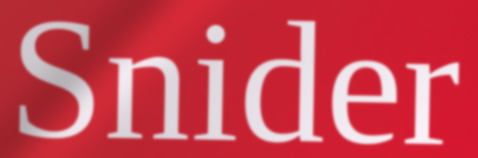
Snider